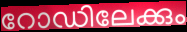
റോഡിലേക്കും